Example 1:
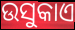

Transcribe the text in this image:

ଉସୁକାଏ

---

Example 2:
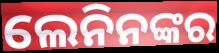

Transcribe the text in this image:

ଲେନିନଙ୍କର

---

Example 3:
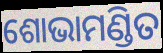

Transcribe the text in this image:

ଶୋଭାମଣ୍ଡିତ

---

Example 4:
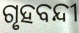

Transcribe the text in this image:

ଗୃହବନ୍ଦୀ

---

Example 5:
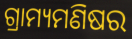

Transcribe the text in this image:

ଗ୍ରାମ୍ୟମଣିଷର